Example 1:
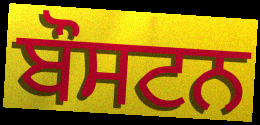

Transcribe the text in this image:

ਬੌਸਟਨ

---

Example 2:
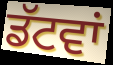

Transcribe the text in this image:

ਡੱਟਵਾਂ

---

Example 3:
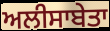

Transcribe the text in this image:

ਅਲੀਸਾਬੇਤਾ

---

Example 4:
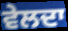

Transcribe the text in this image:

ਵੇਲਦਾ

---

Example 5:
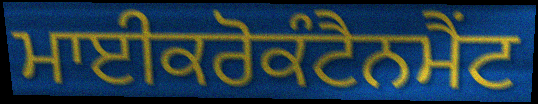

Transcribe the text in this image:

ਮਾਈਕਰੋਕੰਟੈਨਮੈਂਟ